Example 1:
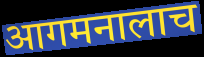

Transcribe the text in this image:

आगमनालाच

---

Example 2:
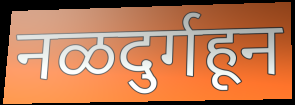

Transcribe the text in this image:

नळदुर्गहून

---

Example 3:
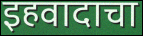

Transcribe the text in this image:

इहवादाचा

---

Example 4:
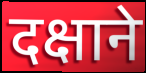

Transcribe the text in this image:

दक्षाने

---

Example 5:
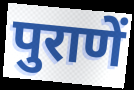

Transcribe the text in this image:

पुराणें